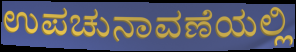
ಉಪಚುನಾವಣೆಯಲ್ಲಿ